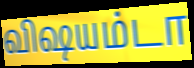
விஷயம்டா